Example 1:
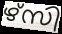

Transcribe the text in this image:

ഴ്സി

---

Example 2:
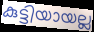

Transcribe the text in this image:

കുട്ടിയായല്ല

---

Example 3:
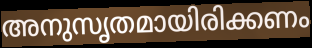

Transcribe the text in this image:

അനുസൃതമായിരിക്കണം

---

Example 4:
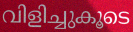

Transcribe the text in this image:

വിളിച്ചുകൂടെ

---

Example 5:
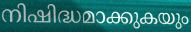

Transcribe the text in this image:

നിഷിദ്ധമാക്കുകയും